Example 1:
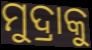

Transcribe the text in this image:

ମୁଦ୍ରାକୁ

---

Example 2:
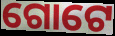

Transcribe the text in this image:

ଗୋଟେ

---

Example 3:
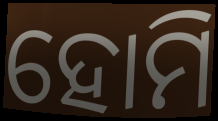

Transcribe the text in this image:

ହୋମି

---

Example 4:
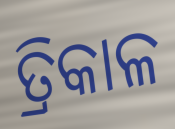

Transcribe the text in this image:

ତ୍ରିକାଳ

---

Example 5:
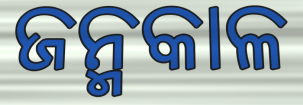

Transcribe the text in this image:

ଜନ୍ମକାଳ